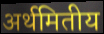
अर्थमितीय